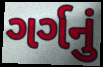
ગર્ગનું